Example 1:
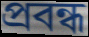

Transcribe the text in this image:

প্ৰবন্ধ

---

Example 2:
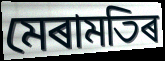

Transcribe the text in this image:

মেৰামতিৰ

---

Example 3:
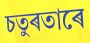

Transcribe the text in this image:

চতুৰতাৰে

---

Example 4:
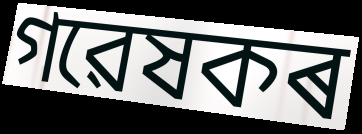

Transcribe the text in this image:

গৱেষকৰ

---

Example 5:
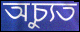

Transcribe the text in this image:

অচ্যুত